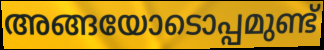
അങ്ങയോടൊപ്പമുണ്ട്